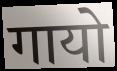
गायो